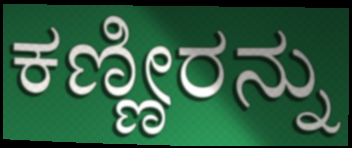
ಕಣ್ಣೀರನ್ನು